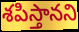
శపిస్తానని